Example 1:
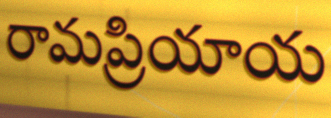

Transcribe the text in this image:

రామప్రియాయ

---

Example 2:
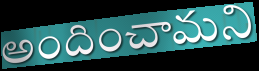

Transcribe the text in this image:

అందించామని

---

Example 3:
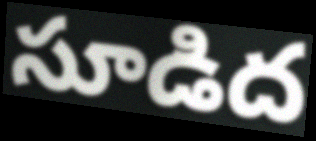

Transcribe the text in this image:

సూడిద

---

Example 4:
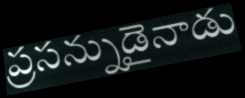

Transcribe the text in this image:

ప్రసన్నుడైనాడు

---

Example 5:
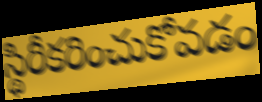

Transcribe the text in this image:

స్థిరీకరించుకోవడం